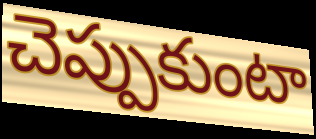
చెప్పుకుంటా